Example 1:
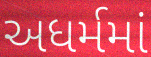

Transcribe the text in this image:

અધર્મમાં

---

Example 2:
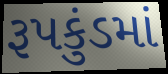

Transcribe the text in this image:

રૂપકુંડમાં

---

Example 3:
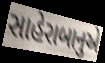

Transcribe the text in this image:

સાહેરાબાનુએ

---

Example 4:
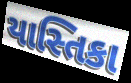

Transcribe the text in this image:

યાસ્તિકા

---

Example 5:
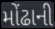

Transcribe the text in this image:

મોંઢાની